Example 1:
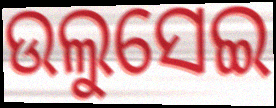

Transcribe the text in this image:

ଉଲୁସେଇ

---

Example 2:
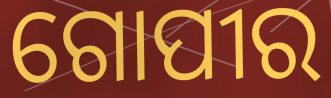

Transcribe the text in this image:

ଗୋପୀର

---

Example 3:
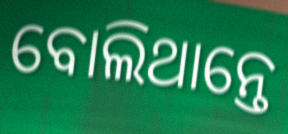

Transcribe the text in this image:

ବୋଲିଥାନ୍ତେ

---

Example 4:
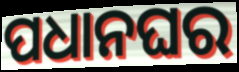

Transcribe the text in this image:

ପଧାନଘର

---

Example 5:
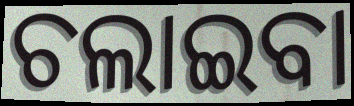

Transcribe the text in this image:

ଚଲାଇବା